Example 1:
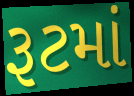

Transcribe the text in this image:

રૂટમાં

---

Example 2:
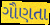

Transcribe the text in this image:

ગૌણતા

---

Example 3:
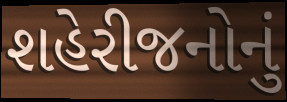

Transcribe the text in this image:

શહેરીજનોનું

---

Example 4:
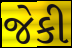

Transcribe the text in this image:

જેકી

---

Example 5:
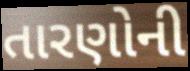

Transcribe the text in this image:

તારણોની